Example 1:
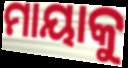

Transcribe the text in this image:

ମାୟାକୁ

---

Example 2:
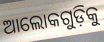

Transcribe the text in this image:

ଆଲୋକଗୁଡ଼ିକୁ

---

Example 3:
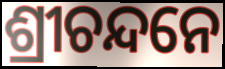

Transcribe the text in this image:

ଶ୍ରୀଚନ୍ଦନେ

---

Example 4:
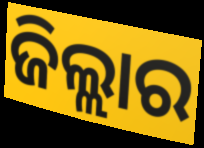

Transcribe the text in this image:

ଜିଲ୍ଲାର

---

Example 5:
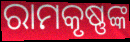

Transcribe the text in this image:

ରାମକୃଷ୍ଣଙ୍କ